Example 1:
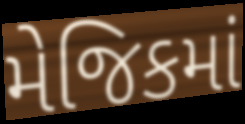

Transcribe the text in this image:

મેજિકમાં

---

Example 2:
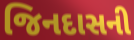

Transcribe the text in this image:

જિનદાસની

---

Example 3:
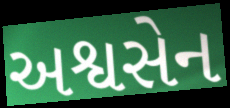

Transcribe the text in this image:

અશ્વસેન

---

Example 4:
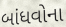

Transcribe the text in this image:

બાંધવોના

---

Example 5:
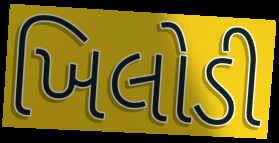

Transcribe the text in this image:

ખિલોડી